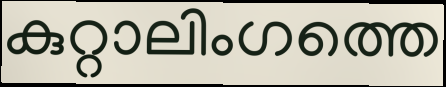
കുറ്റാലിംഗത്തെ